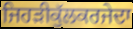
ਜਿਹੜੀਕੁੱਲਕਰਜੇਦਾ